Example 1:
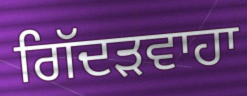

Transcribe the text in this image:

ਗਿੱਦੜਵਾਹਾ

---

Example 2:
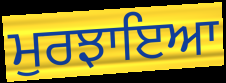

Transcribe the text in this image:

ਮੁਰਝਾਇਆ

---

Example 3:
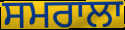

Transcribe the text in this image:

ਸਮਰਾਲਾ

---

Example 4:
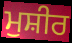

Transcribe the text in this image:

ਮੁਸ਼ੀਰ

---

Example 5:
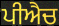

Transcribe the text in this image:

ਪੀਐਚ